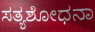
ಸತ್ಯಶೋಧನಾ